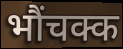
भौंचक्क